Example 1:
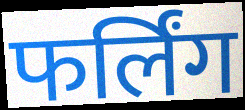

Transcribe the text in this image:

फर्लिंग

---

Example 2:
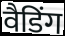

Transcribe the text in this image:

वैडिंग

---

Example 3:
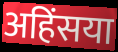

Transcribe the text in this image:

अहिंसया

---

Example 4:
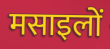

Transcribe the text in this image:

मसाइलों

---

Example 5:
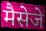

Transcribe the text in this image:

मैसेजे